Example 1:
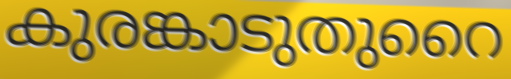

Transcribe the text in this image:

കുരങ്കാടുതുറൈ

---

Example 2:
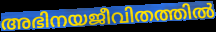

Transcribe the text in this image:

അഭിനയജീവിതത്തിൽ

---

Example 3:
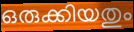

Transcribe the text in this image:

ഒരുക്കിയതും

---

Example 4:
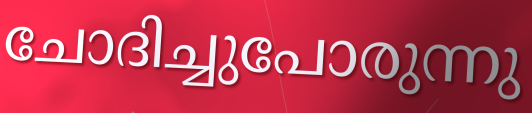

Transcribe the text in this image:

ചോദിച്ചുപോരുന്നു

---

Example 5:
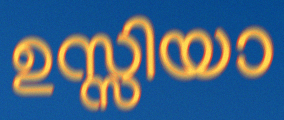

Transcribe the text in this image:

ഉസ്സിയാ